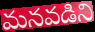
మనవడిని